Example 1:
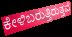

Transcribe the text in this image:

ಕೇಳಿಬರುತ್ತಿರುತ್ತವೆ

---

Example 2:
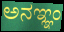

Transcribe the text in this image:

ಅನಞ್ಞಂ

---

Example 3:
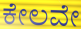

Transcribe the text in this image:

ಕೇಲವೇ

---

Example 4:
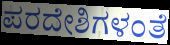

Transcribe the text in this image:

ಪರದೇಶಿಗಳಂತೆ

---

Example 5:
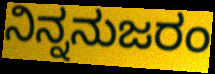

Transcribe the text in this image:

ನಿನ್ನನುಜರಂ